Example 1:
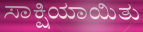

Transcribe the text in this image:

ಸಾಕ್ಷಿಯಾಯಿತು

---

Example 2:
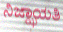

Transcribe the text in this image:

ನಿಜ್ಝಾಯತಿ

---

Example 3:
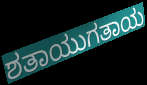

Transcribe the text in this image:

ಶತಾಯುಗತಾಯ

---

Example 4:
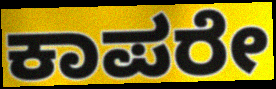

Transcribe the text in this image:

ಕಾಪರೇ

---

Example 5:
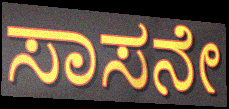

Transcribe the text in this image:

ಸಾಸನೇ